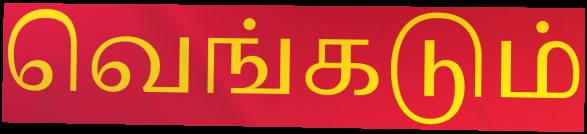
வெங்கடும்